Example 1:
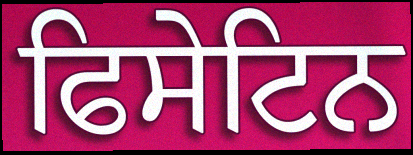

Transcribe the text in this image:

ਫਿਸੇਟਿਨ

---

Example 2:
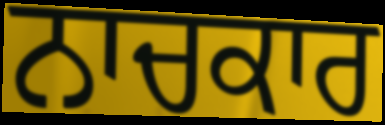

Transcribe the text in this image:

ਨਾਚਕਾਰ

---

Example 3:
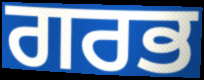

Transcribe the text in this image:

ਗਰਭ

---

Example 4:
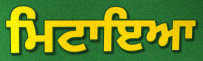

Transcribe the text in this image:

ਮਿਟਾਇਆ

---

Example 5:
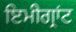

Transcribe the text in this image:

ਇਮੀਗ੍ਰਾਂਟ